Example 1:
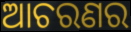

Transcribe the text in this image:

ଆଚରଣର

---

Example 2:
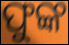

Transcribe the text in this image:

ଫୁଙ୍କ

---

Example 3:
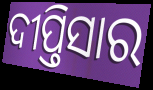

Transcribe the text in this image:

ଦୀପ୍ତିସାର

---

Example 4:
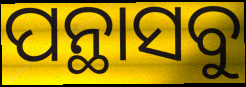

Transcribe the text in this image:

ପନ୍ଥାସବୁ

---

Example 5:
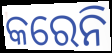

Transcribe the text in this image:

କରେନି